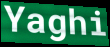
Yaghi